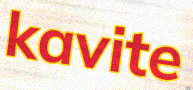
kavite